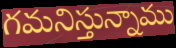
గమనిస్తున్నాము